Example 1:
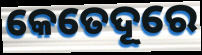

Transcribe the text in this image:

କେତେଦୂରେ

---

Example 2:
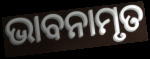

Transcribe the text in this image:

ଭାବନାମୃତ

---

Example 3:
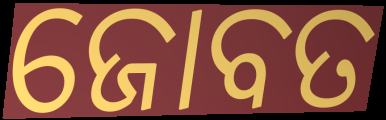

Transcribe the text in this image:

ଜୋବତ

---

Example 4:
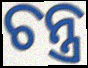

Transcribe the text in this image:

ଚନ୍ତ୍ର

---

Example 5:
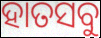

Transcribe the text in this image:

ହାତସବୁ